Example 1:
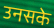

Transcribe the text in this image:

उनसके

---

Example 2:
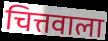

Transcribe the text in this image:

चित्तवाला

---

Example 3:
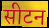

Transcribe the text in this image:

सीटन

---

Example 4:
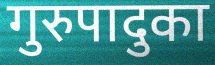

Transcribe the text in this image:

गुरुपादुका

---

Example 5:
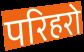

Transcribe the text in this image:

परिहरो